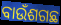
ବାଉଁଶଗଛ